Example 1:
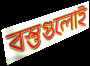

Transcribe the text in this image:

বস্তুগুলোই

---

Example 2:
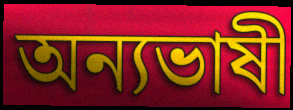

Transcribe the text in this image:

অন্যভাষী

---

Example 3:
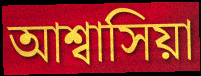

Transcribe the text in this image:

আশ্বাসিয়া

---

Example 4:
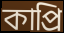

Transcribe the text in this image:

কাপ্রি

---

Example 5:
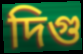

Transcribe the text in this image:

দিগু